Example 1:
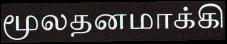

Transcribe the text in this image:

மூலதனமாக்கி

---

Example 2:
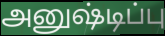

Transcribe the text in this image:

அனுஷ்டிப்பு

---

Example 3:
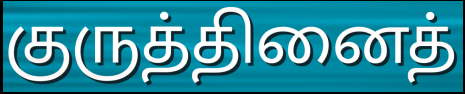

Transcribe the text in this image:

குருத்தினைத்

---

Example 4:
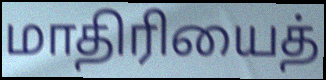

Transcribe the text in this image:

மாதிரியைத்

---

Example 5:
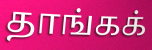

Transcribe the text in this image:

தாங்கக்